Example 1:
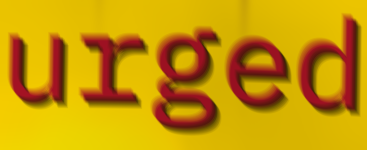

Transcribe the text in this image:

urged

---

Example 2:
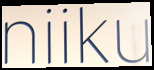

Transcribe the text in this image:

niiku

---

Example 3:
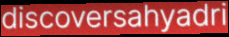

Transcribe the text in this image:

discoversahyadri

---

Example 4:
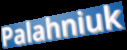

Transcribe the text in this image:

Palahniuk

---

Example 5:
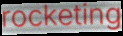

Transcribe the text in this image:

rocketing